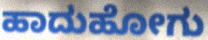
ಹಾದುಹೋಗು